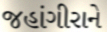
જહાંગીરાને